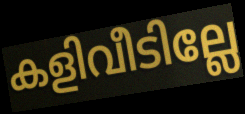
കളിവീടില്ലേ